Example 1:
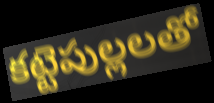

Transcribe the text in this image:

కట్టెపుల్లలతో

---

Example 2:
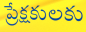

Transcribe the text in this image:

ప్రేక్షకులకు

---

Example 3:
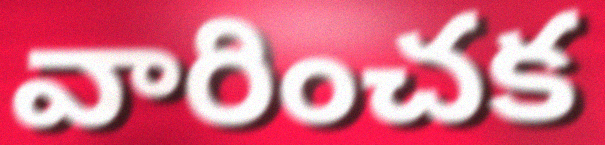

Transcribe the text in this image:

వారించక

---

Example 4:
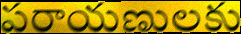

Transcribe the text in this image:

పరాయణులకు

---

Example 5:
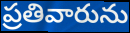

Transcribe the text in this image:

ప్రతివారును